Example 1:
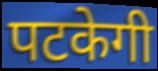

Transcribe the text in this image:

पटकेगी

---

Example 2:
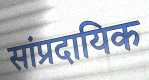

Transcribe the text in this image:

सांप्रदायिक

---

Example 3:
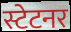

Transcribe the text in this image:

स्टेटनर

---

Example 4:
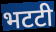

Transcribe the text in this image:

भटटी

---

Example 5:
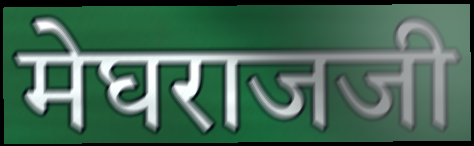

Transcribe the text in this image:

मेघराजजी